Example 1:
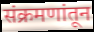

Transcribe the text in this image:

संक्रमणांतून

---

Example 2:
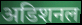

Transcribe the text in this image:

अडिशनल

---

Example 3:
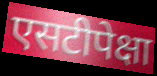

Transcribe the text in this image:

एसटीपेक्षा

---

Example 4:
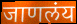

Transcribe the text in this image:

जाणलंय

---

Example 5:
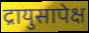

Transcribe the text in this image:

द्रायुसापेक्ष